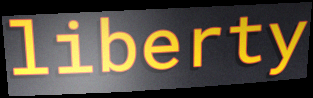
liberty